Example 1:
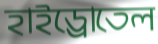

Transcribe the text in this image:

হাইড্রোতেল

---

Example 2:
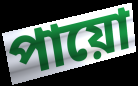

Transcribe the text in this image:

পায়ো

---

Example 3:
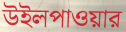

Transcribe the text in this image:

উইলপাওয়ার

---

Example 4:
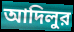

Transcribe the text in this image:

আদিলুর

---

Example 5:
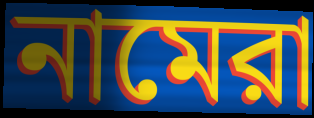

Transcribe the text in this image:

নামেরা